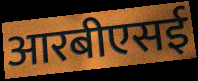
आरबीएसई